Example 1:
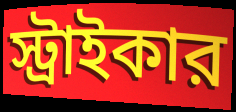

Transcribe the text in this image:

স্ট্রাইকার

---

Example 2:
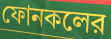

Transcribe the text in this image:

ফোনকলের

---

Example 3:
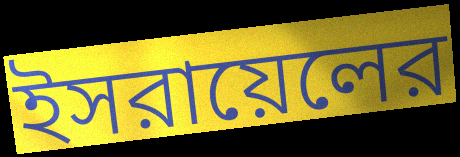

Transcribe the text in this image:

ইসরায়েলের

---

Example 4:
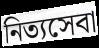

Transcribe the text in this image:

নিত্যসেবা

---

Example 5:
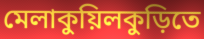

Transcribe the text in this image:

মেলাকুয়িলকুড়িতে